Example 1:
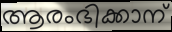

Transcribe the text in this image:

ആരംഭിക്കാന്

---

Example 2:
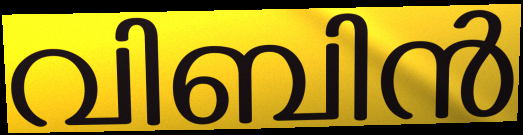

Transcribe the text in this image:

വിബിൻ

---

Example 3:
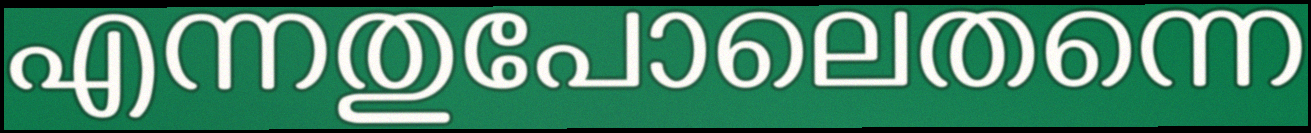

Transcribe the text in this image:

എന്നതുപോലെതന്നെ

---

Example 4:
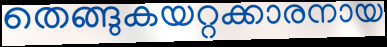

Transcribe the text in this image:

തെങ്ങുകയറ്റക്കാരനായ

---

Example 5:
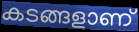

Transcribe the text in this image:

കടങ്ങളാണ്